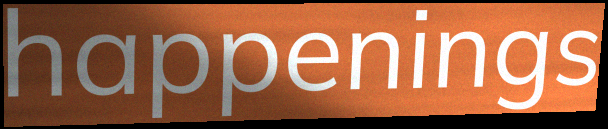
happenings